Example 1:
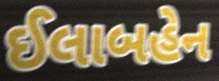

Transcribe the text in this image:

ઈલાબહેન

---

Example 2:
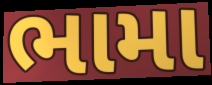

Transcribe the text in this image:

ભામા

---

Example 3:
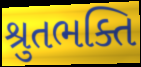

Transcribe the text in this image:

શ્રુતભક્તિ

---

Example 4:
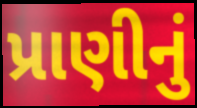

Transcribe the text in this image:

પ્રાણીનું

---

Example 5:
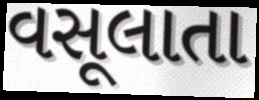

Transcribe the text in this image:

વસૂલાતા